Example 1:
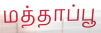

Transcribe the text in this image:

மத்தாப்பூ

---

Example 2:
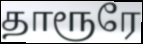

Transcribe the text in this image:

தாரூரே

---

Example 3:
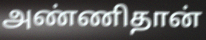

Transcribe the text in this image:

அண்ணிதான்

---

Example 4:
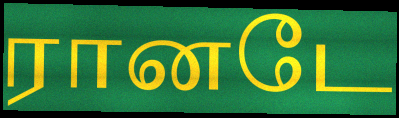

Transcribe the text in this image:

ரானடே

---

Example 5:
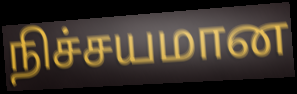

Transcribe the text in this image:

நிச்சயமான